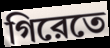
গিরেতে